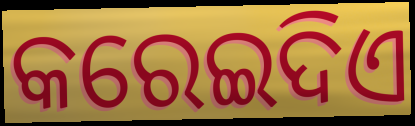
କରେଇଦିଏ